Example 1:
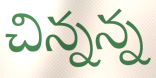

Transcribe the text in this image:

చిన్నన్న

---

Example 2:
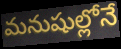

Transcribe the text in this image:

మనుషుల్లోనే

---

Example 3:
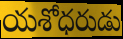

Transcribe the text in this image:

యశోధరుడు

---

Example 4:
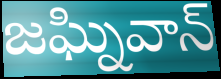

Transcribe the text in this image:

జఘ్నివాన్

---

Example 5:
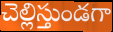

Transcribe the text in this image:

చెల్లిస్తుండగా